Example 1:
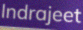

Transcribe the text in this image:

Indrajeet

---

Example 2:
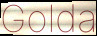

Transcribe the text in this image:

Golda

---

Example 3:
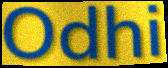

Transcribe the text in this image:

Odhi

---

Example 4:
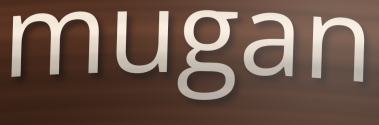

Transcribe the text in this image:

mugan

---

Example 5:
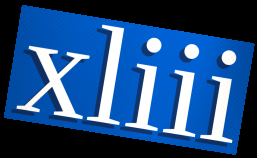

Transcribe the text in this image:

xliii